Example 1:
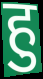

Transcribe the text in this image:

हु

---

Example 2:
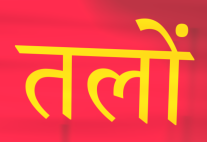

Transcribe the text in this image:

तलों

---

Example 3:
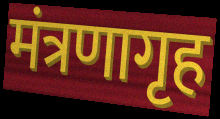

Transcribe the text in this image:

मंत्रणागृह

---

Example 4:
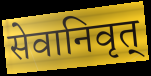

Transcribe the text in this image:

सेवानिवृत्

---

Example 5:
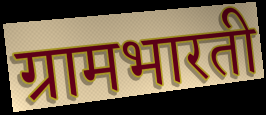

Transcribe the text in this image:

ग्रामभारती